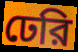
ঢেরি